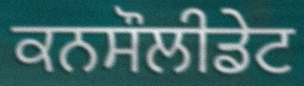
ਕਨਸੌਲੀਡੇਟ